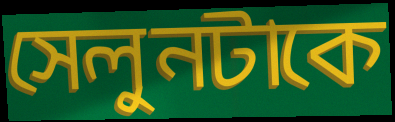
সেলুনটাকে